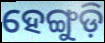
ହେଙ୍ଗୁଡ଼ି